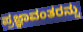
ಪ್ರಜ್ಞಾವಂತರನ್ನು